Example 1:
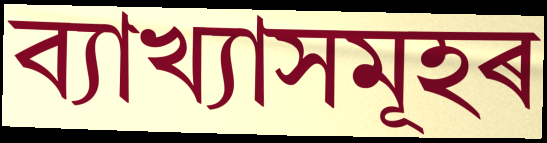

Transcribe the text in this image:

ব্যাখ্যাসমূহৰ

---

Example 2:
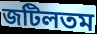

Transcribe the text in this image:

জটিলতম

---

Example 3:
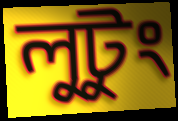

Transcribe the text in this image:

লুটুং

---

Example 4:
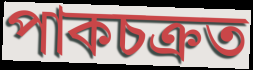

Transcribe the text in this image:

পাকচক্ৰত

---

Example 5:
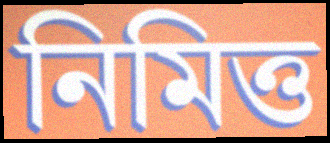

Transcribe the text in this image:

নিমিত্ত